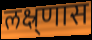
लक्ष्र्णास